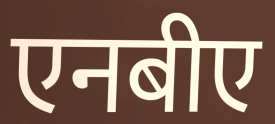
एनबीए